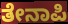
ತೇನಾಪಿ